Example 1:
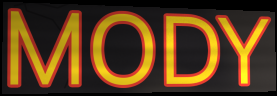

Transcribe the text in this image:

MODY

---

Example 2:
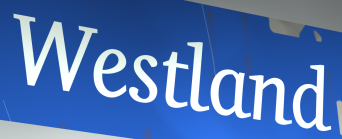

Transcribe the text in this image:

Westland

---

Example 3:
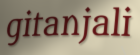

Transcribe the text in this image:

gitanjali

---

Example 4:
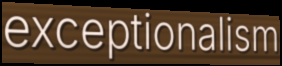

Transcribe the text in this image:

exceptionalism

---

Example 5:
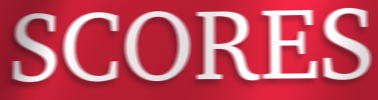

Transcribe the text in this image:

SCORES